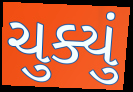
ચુક્યું